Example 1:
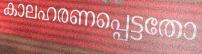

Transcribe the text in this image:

കാലഹരണപ്പെട്ടതോ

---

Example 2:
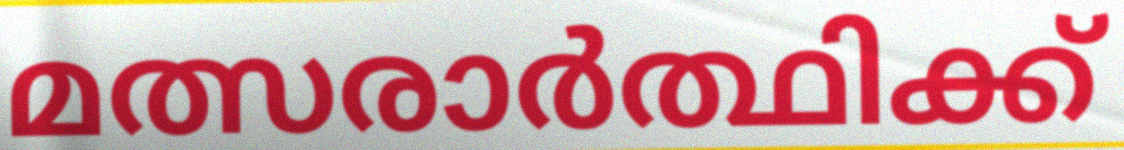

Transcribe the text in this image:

മത്സരാർത്ഥിക്ക്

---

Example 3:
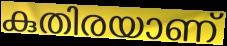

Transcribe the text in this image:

കുതിരയാണ്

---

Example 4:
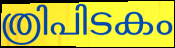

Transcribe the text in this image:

ത്രിപിടകം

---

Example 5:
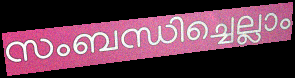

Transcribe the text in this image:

സംബന്ധിച്ചെല്ലാം